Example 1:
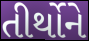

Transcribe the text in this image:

તીર્થોને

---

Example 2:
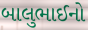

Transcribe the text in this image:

બાલુભાઈનો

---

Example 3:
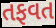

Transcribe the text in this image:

તફવત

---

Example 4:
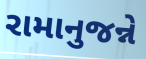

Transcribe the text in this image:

રામાનુજન્ને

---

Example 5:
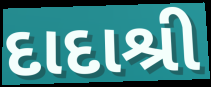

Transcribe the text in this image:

દાદાશ્રી